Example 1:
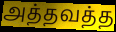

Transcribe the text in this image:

அத்தவத்த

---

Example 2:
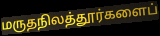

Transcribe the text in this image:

மருதநிலத்தூர்களைப்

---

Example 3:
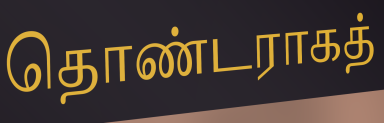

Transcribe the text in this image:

தொண்டராகத்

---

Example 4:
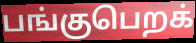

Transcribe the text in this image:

பங்குபெறக்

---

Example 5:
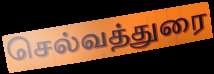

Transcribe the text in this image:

செல்வத்துரை